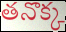
తనొక్క